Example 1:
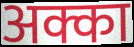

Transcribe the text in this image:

अक्का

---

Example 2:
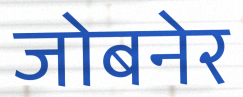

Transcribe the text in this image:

जोबनेर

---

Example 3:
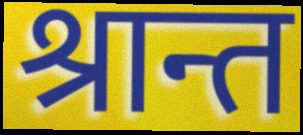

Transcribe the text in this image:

श्रान्त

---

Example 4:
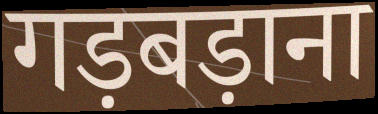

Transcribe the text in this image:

गड़बड़ाना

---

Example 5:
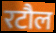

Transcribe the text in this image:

रटौल